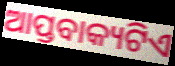
ଆପ୍ତବାକ୍ୟଟିଏ